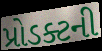
પ્રોડક્ટની